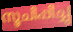
സൂചിപ്പിച്ചു